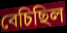
বেচিছিল